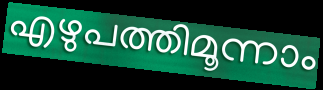
എഴുപത്തിമൂന്നാം